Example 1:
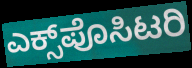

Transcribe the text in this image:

ಎಕ್ಸ್‌ಪೊಸಿಟರಿ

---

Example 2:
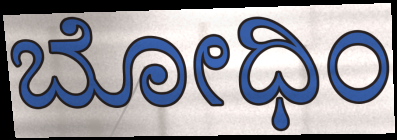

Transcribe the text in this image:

ಬೋಧಿಂ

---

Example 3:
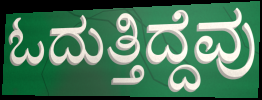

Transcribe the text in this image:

ಓದುತ್ತಿದ್ದೆವು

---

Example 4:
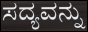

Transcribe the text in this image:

ಸದ್ಯವನ್ನು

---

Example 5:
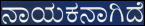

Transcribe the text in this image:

ನಾಯಕನಾಗಿದೆ